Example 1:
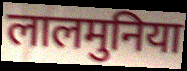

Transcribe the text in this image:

लालमुनिया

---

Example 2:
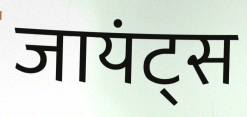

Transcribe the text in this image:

जायंट्स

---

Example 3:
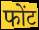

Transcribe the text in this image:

फोंट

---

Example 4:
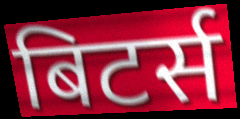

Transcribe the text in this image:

बिटर्स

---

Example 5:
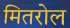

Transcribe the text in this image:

मितरोल